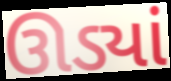
ઊડ્યાં